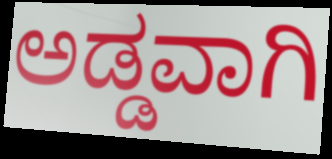
ಅಡ್ಡವಾಗಿ